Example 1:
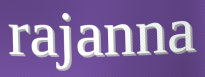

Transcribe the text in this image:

rajanna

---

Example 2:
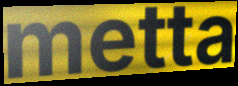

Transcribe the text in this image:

metta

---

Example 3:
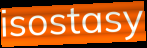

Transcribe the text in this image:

isostasy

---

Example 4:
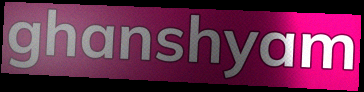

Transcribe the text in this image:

ghanshyam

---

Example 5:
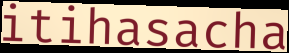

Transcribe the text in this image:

itihasacha